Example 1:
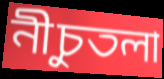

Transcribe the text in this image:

নীচুতলা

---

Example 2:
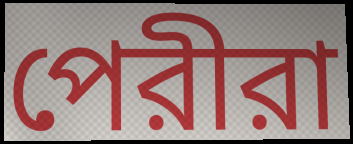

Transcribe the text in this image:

পেরীরা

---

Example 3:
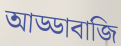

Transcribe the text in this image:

আড্ডাবাজি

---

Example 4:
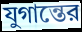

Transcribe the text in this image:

যুগান্তের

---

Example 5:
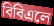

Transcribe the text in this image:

বিবিএলে